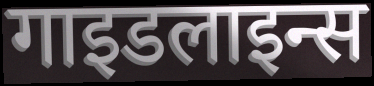
गाइडलाइन्स